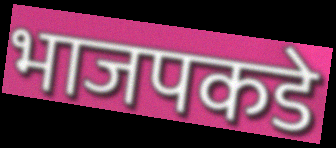
भाजपकडे